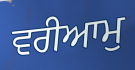
ਵਰੀਆਮੁ